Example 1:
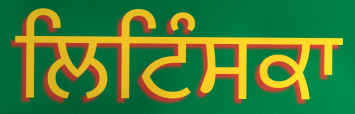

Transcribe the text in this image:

ਲਿਟਿੰਸਕਾ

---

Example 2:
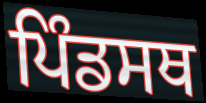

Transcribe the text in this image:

ਪਿੰਡਸਥ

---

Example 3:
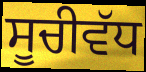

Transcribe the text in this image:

ਸੂਚੀਵੱਧ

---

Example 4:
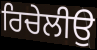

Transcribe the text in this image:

ਰਿਚੇਲੀਉ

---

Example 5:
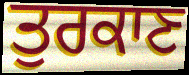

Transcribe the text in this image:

ਤੁਰਕਾਣ